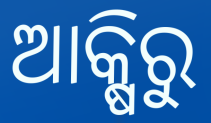
ଆକ୍ଷିରୁ